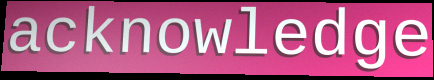
acknowledge